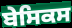
ਬੇਸਿਕਸ